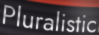
Pluralistic